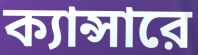
ক্যান্সারে